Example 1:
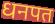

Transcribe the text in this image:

धनपत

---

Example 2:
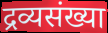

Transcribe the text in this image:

द्रव्यसंख्या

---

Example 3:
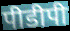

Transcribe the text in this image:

पीडीपी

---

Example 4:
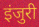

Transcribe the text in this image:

इंजुरी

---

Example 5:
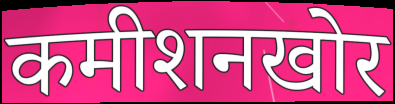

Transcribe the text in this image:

कमीशनखोर